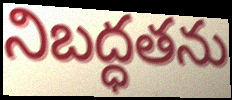
నిబద్ధతను